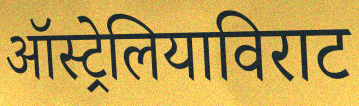
ऑस्ट्रेलियाविराट